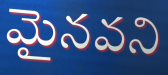
మైనవని